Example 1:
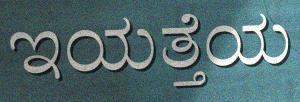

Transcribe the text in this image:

ಇಯತ್ತೆಯ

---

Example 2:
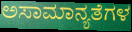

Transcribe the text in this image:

ಅಸಾಮಾನ್ಯತೆಗಳ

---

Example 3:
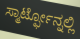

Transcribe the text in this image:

ಸ್ಮಾರ್ಟ್ಫೋನ್ನಲ್ಲಿ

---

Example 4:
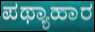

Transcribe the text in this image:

ಪಥ್ಯಾಹಾರ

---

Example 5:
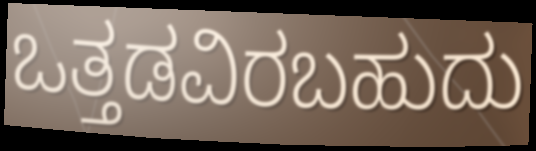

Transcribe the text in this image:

ಒತ್ತಡವಿರಬಹುದು